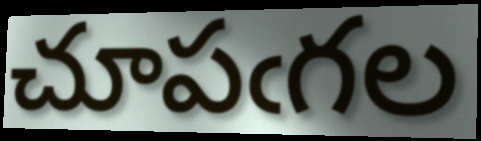
చూపఁగల